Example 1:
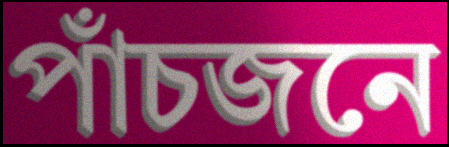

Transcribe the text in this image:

পাঁচজনে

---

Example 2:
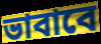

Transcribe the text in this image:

ভাবাবে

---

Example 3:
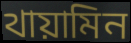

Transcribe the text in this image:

থায়ামিন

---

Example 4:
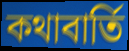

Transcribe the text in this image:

কথাবার্তি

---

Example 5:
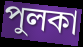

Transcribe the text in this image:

পুলকা